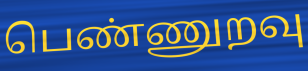
பெண்ணுறவு